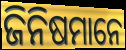
ଜିନିଷମାନେ